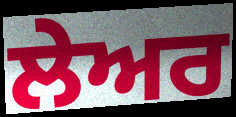
ਲੇਅਰ